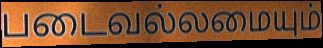
படைவல்லமையும்